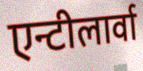
एन्टीलार्वा